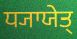
ਧ੍ਯਾਯੇਤ੍